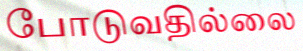
போடுவதில்லை